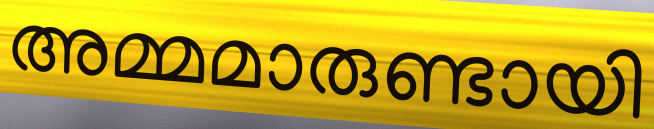
അമ്മമാരുണ്ടായി